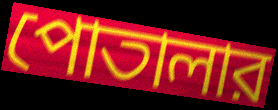
পোতালার